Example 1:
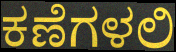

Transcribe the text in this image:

ಕಣೆಗಳಲಿ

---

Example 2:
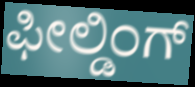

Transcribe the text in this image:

ಫೀಲ್ಡಿಂಗ್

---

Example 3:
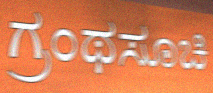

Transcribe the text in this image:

ಗ್ರಂಥಸೂಚಿ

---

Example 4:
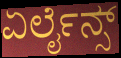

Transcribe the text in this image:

ಏರ್ಲೈನ್ಸ್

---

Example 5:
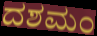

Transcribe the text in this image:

ದಶಮಂ